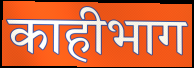
काहीभाग